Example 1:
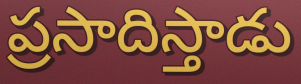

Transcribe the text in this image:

ప్రసాదిస్తాడు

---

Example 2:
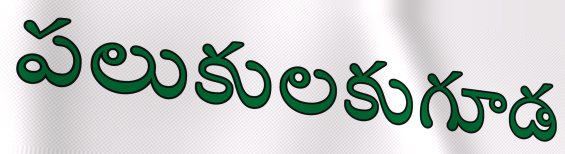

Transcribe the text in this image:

పలుకులకుగూడ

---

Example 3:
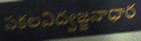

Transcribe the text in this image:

సకలవిద్వజ్జనాధార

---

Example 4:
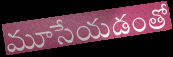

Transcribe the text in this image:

మూసేయడంతో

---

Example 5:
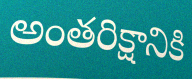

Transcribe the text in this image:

అంతరిక్షానికి